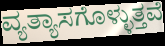
ವ್ಯತ್ಯಾಸಗೊಳ್ಳುತ್ತವೆ